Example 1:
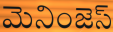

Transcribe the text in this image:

మెనింజెస్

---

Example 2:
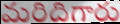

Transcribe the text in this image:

మరిదిగారు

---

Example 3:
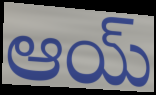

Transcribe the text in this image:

ఆయ్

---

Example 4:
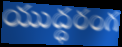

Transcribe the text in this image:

యుద్ధరంగ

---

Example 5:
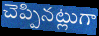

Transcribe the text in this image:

చెప్పినట్లుగా